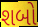
શબો